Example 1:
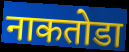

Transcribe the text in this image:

नाकतोडा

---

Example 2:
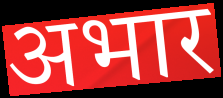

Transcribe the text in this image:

अभार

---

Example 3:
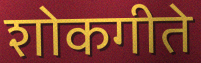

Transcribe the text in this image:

शोकगीते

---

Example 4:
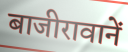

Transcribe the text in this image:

बाजीरावानें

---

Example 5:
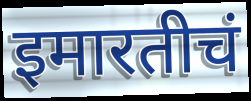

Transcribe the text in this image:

इमारतीचं